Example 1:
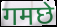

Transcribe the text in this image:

गमछे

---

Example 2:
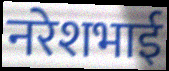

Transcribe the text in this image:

नरेशभाई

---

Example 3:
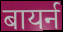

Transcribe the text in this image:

बायर्न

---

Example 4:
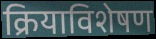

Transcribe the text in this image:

क्रियाविशेषण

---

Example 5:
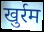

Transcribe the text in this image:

खुर्रम